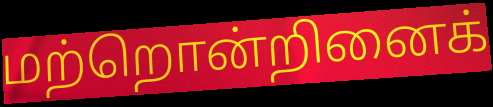
மற்றொன்றினைக்